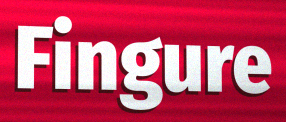
Fingure